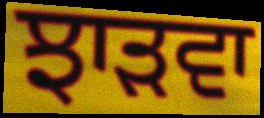
ਝਾੜਵਾ